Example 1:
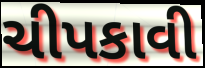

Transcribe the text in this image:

ચીપકાવી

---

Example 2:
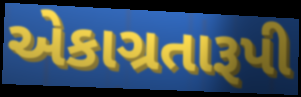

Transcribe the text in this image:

એકાગ્રતારૂપી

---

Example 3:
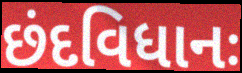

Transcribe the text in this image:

છંદવિધાનઃ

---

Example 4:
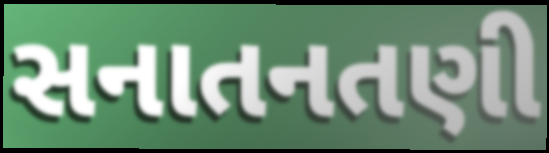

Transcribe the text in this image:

સનાતનતણી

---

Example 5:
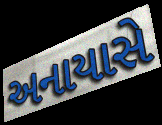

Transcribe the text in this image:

અનાયાસે